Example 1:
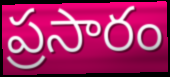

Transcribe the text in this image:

ప్రసారం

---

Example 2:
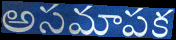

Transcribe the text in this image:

అసమాపక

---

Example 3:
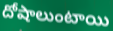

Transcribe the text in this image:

దోషాలుంటాయి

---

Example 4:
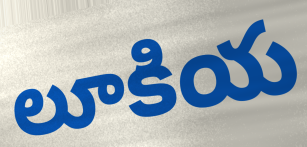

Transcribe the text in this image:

లూకియ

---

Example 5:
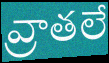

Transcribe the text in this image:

వ్రాతలే